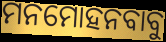
ମନମୋହନବାବୁ